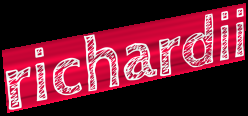
richardii